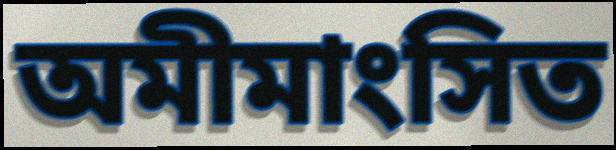
অমীমাংসিত